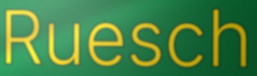
Ruesch